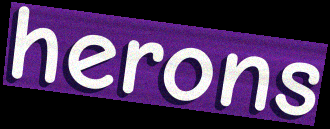
herons